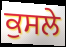
ਕੁਸਲੇ